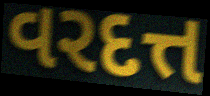
વરદત્ત